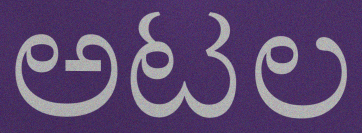
ಅಟಲ